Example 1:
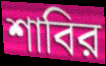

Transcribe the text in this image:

শাবির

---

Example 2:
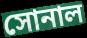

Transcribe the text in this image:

সোনাল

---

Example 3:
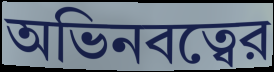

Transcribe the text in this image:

অভিনবত্বের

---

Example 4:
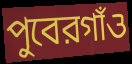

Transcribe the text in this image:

পুবেরগাঁও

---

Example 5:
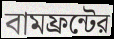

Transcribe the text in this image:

বামফ্রন্টের